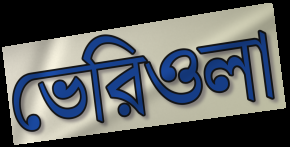
ভেরিওলা